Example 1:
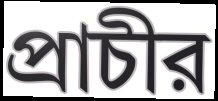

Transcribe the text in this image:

প্রাচীর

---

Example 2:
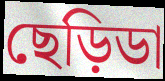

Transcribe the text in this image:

ছেড়িডা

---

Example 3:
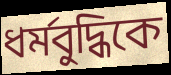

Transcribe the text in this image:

ধর্মবুদ্ধিকে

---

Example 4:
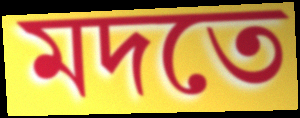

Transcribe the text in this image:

মদতে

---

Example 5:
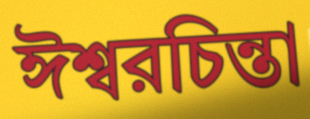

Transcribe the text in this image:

ঈশ্বরচিন্তা